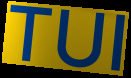
TUI